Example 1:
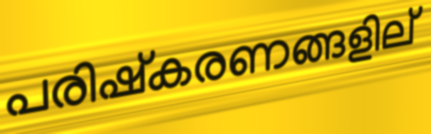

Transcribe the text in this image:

പരിഷ്കരണങ്ങളില്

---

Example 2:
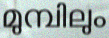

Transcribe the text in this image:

മുമ്പിലും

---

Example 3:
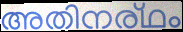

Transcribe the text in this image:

അതിനര്ഥം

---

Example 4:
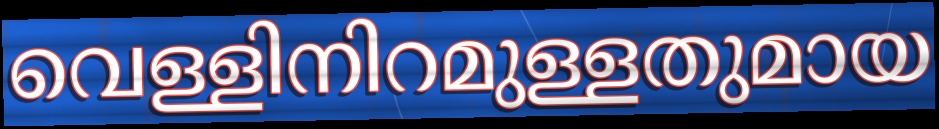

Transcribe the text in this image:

വെള്ളിനിറമുള്ളതുമായ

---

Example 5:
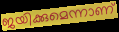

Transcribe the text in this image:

ജയിക്കുമെന്നാണ്